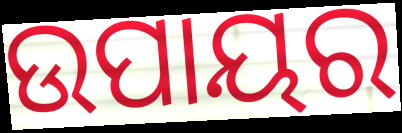
ଉପାୟର